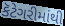
કૅટેગરીમાંથી